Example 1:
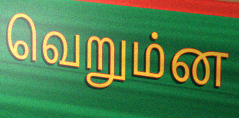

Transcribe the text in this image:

வெறும்ன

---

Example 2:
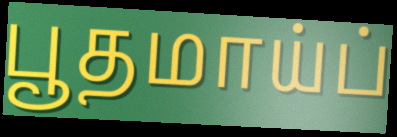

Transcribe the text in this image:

பூதமாய்ப்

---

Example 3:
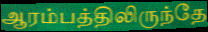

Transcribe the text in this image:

ஆரம்பத்திலிருந்தே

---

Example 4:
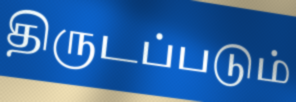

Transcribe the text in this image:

திருடப்படும்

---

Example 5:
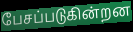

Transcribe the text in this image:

பேசப்படுகின்றன